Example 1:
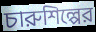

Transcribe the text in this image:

চারুশিল্পের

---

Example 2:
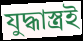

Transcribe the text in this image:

যুদ্ধাস্ত্রই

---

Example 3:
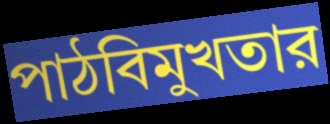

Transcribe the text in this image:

পাঠবিমুখতার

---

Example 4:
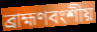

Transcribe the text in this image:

ব্রাহ্মণবংশীয়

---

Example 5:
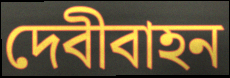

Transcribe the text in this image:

দেবীবাহন